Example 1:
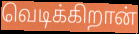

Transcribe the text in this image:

வெடிக்கிறான்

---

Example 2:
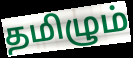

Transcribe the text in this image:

தமிழும்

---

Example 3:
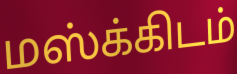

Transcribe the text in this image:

மஸ்க்கிடம்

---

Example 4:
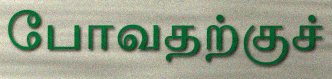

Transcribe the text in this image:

போவதற்குச்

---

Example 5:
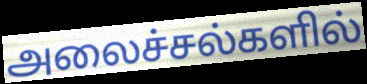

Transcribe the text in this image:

அலைச்சல்களில்